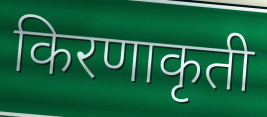
किरणाकृती